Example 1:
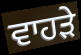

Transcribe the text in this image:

ਵਾਹੜੇ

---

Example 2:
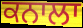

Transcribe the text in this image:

ਕਨਾਲਾ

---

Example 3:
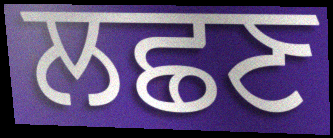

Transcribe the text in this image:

ਲਛਣ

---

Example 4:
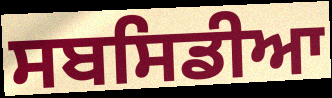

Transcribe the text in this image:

ਸਬਸਿਡੀਆ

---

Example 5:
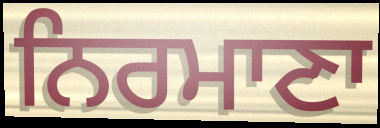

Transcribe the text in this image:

ਨਿਰਮਾਣਾ